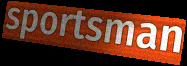
sportsman